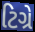
ટિગ્રે